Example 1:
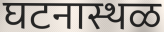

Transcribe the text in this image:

घटनास्थळ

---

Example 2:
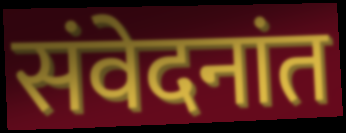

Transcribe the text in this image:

संवेदनांत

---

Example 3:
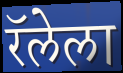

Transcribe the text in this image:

रॅलेला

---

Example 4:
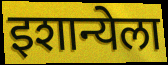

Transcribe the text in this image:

इशान्येला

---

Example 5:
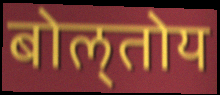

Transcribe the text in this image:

बोल्तोय